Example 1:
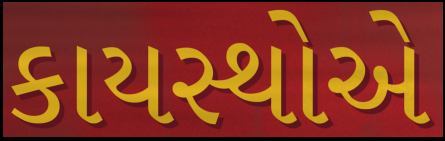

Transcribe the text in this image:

કાયસ્થોએ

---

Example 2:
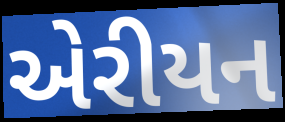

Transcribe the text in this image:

એરીયન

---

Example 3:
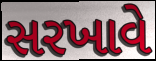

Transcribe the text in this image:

સરખાવે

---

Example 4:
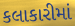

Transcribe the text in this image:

કલાકારીમાં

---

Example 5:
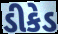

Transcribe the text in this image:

ડીકેડ